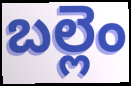
బల్లెం